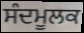
ਸੰਦਮੂਲਕ